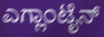
ಎಗ್ಲಾಂಟೈನ್